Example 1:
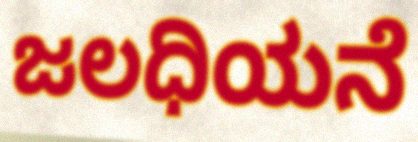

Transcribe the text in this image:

ಜಲಧಿಯನೆ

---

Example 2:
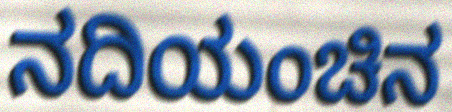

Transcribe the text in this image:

ನದಿಯಂಚಿನ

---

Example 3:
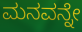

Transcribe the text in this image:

ಮನವನ್ನೇ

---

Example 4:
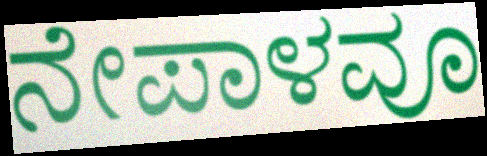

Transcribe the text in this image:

ನೇಪಾಳವೂ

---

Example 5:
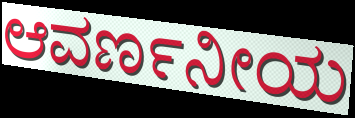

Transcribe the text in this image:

ಆವರ್ಣನೀಯ